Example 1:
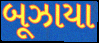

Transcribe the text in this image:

બૂઝાયા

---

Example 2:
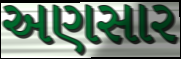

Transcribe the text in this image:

અણસાર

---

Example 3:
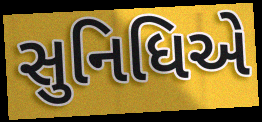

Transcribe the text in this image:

સુનિધિએ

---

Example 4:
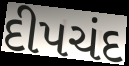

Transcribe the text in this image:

દીપચંદ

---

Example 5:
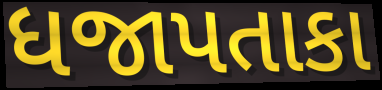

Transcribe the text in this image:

ધજાપતાકા